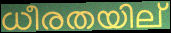
ധീരതയില്